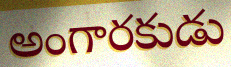
అంగారకుడు